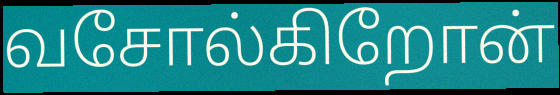
வசோல்கிறோன்